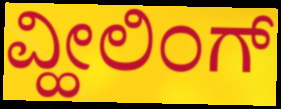
ವ್ಹೀಲಿಂಗ್